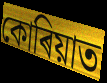
কোৰিয়াত